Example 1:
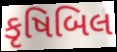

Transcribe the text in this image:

કૃષિબિલ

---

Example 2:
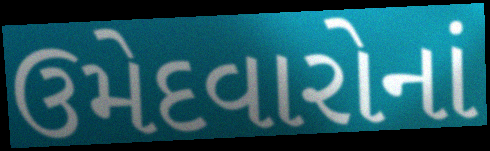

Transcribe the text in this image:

ઉમેદવારોનાં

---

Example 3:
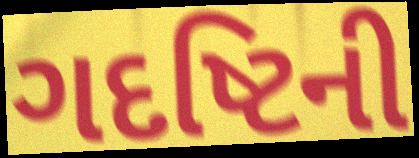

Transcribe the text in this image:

ગદષ્ટિની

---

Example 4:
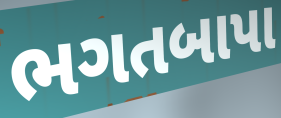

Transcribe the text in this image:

ભગતબાપા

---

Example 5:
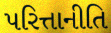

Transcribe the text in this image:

પરિત્તાનીતિ